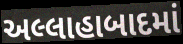
અલ્લાહાબાદમાં